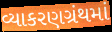
વ્યાકરણગ્રંથમાં